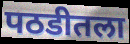
पठडीतला